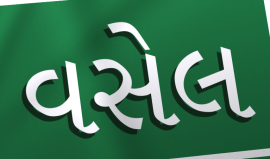
વસેલ